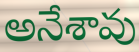
అనేశావు